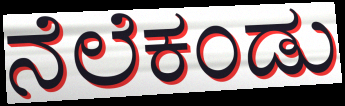
ನೆಲೆಕಂಡು